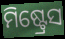
ମିଷ୍ଟ୍ରେସ